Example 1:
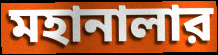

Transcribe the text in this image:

মহানালার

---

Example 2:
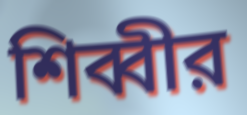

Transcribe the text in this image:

শিব্বীর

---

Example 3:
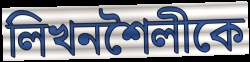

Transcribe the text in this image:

লিখনশৈলীকে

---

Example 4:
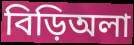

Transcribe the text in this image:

বিড়িঅলা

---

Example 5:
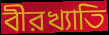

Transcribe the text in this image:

বীরখ্যাতি